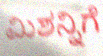
ಮಿಶನ್ನಿಗೆ